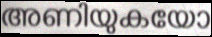
അണിയുകയോ